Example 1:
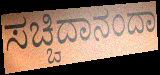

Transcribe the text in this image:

ಸಚ್ಚಿದಾನಂದಾ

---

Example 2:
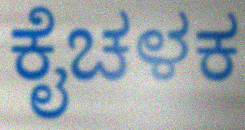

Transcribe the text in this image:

ಕೈಚಳಕ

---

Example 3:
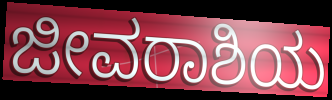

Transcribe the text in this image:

ಜೀವರಾಶಿಯ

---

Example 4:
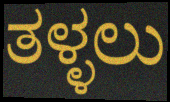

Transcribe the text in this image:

ತಳ್ಳಲು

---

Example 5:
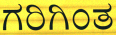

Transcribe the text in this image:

ಗರಿಗಿಂತ